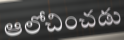
ఆలోచించడు